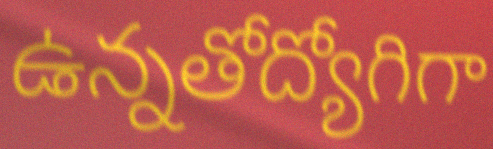
ఉన్నతోద్యోగిగా